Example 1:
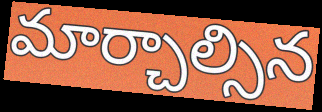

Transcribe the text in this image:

మార్చాల్సిన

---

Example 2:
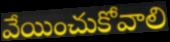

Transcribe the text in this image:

వేయించుకోవాలి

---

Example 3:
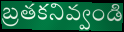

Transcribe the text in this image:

బ్రతకనివ్వండి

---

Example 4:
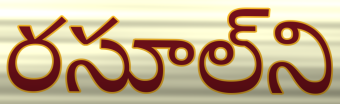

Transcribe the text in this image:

రసూల్‌ని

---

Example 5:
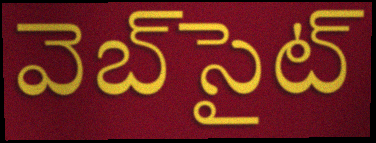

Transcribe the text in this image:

వెబ్‌సైట్